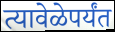
त्यावेळेपर्यंत